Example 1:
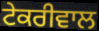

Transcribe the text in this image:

ਟੇਕਰੀਵਾਲ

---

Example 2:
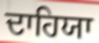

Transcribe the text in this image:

ਦਾਹਿਯਾ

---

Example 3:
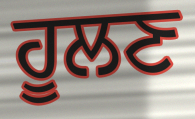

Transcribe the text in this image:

ਹੂਲਣ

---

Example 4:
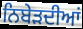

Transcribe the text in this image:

ਨਿਬੇੜਦੀਆਂ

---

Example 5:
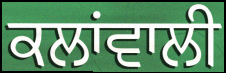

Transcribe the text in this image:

ਕਲਾਂਵਾਲੀ